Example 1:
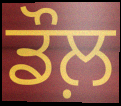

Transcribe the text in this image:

ਡੌਲ਼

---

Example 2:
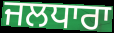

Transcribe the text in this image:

ਜਲਧਾਰਾ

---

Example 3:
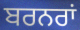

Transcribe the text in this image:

ਬਰਨਰਾਂ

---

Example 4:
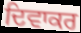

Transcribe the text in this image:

ਦਿਵਾਕਰ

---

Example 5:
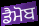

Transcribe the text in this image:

ਡੈਮੋਬ